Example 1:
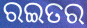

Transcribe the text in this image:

ରଇତର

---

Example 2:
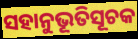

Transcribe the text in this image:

ସହାନୁଭୂତିସୂଚକ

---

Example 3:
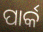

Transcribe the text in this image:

ପାର୍କ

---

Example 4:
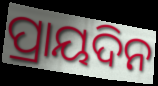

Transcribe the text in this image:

ପ୍ରାୟଦିନ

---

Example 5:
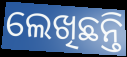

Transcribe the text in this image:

ଲେଖିଛନ୍ତି